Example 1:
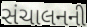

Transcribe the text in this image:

સંચાલનની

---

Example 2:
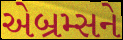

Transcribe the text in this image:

એબ્રમ્સને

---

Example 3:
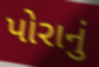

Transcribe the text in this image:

પોરાનું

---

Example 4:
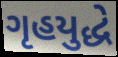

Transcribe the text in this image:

ગૃહયુદ્ધે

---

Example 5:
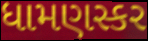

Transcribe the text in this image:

ધામણસ્કર